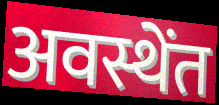
अवस्थेंत